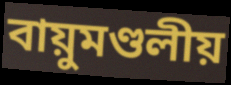
বায়ুমণ্ডলীয়